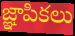
జ్ఞాపికలు